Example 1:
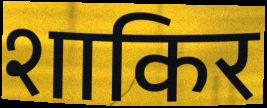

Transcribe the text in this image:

शाकिर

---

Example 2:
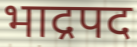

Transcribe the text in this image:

भाद्रपद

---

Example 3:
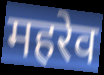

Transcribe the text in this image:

महरेव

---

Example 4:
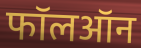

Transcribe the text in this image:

फॉलऑन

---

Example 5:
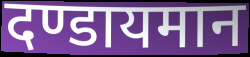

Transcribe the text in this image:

दण्डायमान